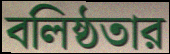
বলিষ্ঠতার